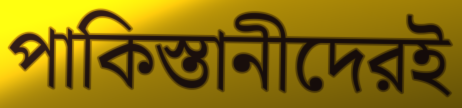
পাকিস্তানীদেরই